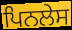
ਪਿਨਲੇਸ